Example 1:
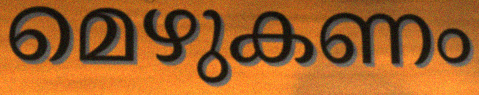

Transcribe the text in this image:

മെഴുകണം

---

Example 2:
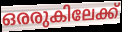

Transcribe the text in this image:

ഒരരുകിലേക്ക്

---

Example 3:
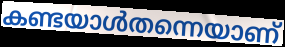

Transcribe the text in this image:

കണ്ടയാൾതന്നെയാണ്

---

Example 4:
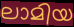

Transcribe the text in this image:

ലാമിയ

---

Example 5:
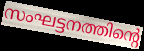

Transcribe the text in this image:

സംഘട്ടനത്തിന്റെ